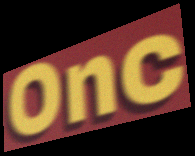
Onc